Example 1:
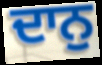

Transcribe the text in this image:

ਦਾਨੁ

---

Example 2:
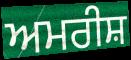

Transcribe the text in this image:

ਅਮਰੀਸ਼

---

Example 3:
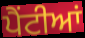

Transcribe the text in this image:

ਪੈਂਟੀਆਂ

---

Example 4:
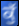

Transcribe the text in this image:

ਕੁੱ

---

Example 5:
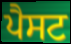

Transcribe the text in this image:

ਪੈਸਟ